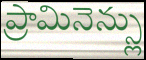
ప్రామినెన్స్లు